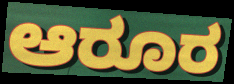
ಆರೂರ